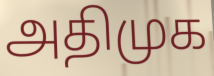
அதிமுக